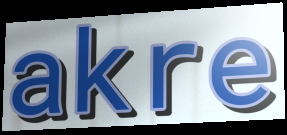
akre